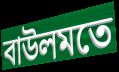
বাউলমতে